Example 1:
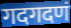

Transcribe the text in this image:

गदगदणं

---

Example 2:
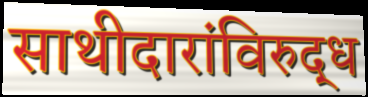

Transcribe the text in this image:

साथीदारांविरुद्ध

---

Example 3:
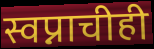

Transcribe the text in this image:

स्वप्नाचीही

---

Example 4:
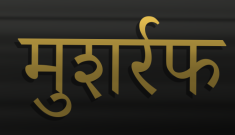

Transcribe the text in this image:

मुशर्रफ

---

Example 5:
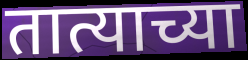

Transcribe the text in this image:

तात्याच्या